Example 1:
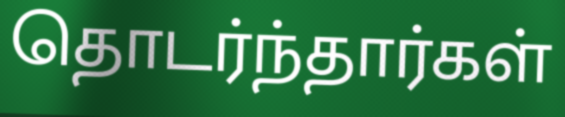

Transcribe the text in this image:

தொடர்ந்தார்கள்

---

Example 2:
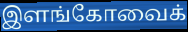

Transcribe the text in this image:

இளங்கோவைக்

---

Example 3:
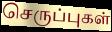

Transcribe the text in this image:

செருப்புகள்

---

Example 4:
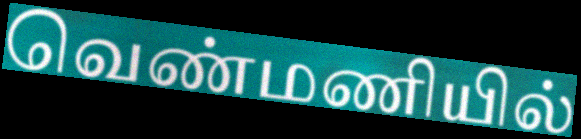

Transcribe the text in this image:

வெண்மணியில்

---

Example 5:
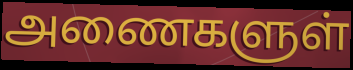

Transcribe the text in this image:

அணைகளுள்